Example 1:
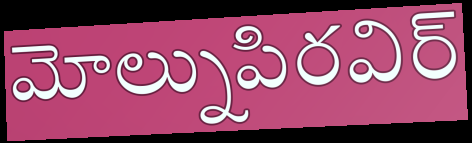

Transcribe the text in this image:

మోల్నుపిరవిర్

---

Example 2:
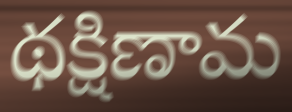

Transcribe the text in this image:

థక్షిణామ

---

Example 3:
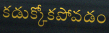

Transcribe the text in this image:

కడుక్కోకపోవడం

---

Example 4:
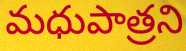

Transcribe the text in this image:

మధుపాత్రని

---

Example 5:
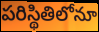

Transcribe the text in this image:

పరిస్థితిలోనూ